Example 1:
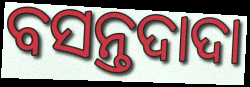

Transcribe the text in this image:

ବସନ୍ତଦାଦା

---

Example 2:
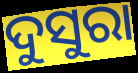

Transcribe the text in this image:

ଦୁସୁରା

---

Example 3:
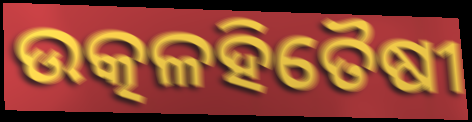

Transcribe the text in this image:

ଉତ୍କଳହିତୈଷୀ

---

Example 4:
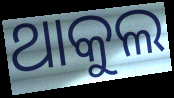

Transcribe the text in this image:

ଥାକୁଲ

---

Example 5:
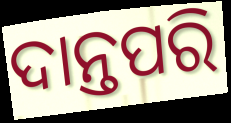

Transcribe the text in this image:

ଦାନ୍ତପରି